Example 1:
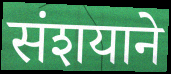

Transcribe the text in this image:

संशयाने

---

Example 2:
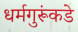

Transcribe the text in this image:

धर्मगुरूंकडे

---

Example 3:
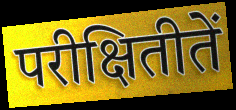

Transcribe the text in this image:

परीक्षितीतें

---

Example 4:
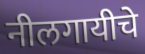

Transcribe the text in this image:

नीलगायीचे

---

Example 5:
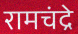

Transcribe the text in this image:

रामचंद्रे